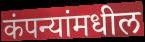
कंपन्यांमधील